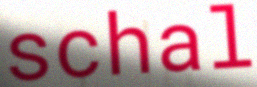
schal